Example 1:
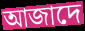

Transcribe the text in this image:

আজাদে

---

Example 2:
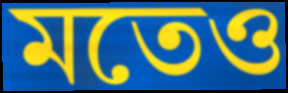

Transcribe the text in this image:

মতেও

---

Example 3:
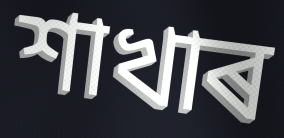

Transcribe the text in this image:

শাখাৰ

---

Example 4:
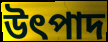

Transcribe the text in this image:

উৎপাদ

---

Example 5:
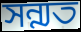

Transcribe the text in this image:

সন্মত